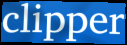
clipper